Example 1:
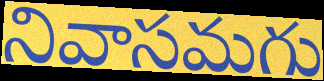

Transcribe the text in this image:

నివాసమగు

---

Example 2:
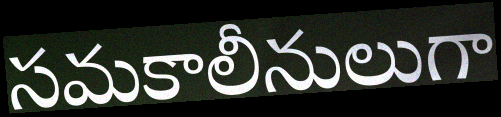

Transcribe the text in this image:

సమకాలీనులుగా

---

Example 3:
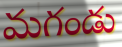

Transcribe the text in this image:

మగండు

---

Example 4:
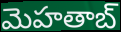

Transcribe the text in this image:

మెహతాబ్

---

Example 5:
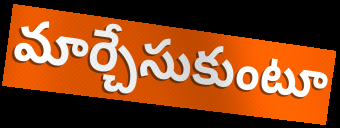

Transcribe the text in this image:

మార్చేసుకుంటూ